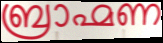
ബ്രാഹ്മണ